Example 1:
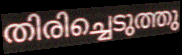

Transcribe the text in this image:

തിരിച്ചെടുത്തു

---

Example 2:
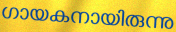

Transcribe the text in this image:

ഗായകനായിരുന്നു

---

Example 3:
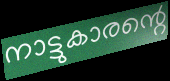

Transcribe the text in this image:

നാട്ടുകാരന്റെ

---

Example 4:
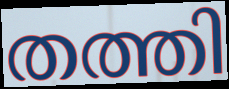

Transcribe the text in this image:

തത്തി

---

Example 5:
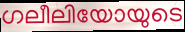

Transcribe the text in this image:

ഗലീലിയോയുടെ